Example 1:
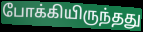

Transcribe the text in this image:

போக்கியிருந்தது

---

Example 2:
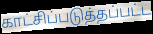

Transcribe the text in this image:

காட்சிப்படுத்தப்பட்ட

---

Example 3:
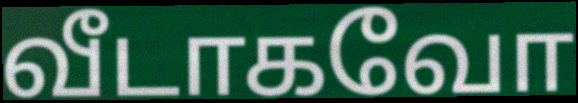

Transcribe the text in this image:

வீடாகவோ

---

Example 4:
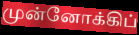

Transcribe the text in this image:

முன்னோக்கிப்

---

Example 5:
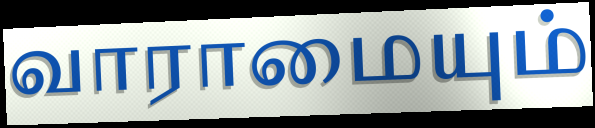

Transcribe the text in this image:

வாராமையும்